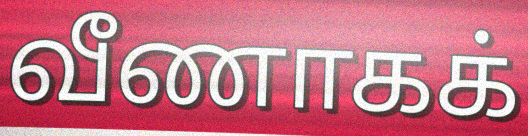
வீணாகக்